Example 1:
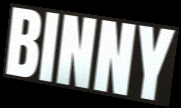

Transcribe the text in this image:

BINNY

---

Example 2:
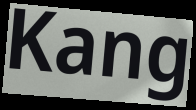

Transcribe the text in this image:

Kang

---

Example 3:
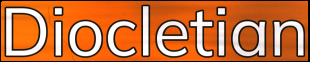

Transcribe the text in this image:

Diocletian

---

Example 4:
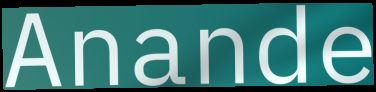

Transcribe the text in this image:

Anande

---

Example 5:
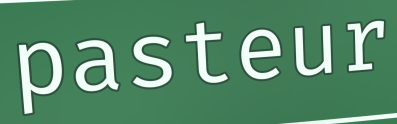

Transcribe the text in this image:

pasteur